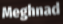
Meghnad